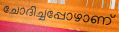
ചോദിച്ചപ്പോഴാണ്